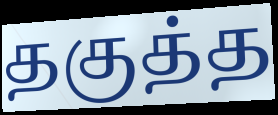
தகுத்த